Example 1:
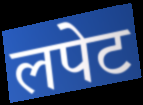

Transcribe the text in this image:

लपेट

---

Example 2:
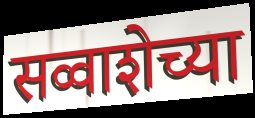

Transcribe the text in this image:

सव्वाशेच्या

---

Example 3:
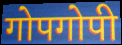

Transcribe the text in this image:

गोपगोपी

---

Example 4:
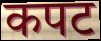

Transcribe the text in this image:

कपट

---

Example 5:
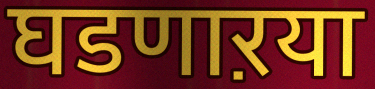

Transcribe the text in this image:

घडणाऱया